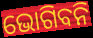
ଭୋଗିବନି